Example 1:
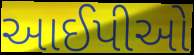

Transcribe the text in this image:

આઈપીઓ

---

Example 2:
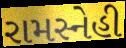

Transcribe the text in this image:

રામસ્નેહી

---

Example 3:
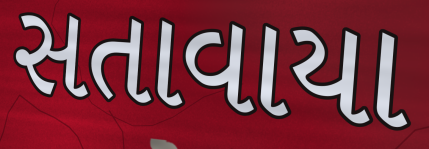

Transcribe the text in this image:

સતાવાયા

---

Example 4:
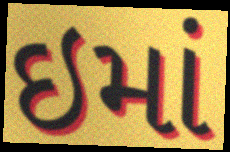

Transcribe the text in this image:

ઇમાં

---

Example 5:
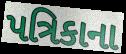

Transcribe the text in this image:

પત્રિકાના